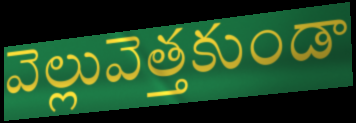
వెల్లువెత్తకుండా